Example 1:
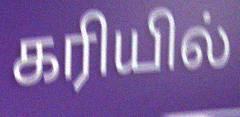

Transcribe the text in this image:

கரியில்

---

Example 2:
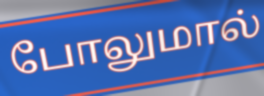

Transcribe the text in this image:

போலுமால்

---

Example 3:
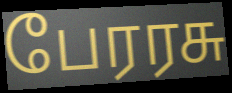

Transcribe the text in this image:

பேரரசு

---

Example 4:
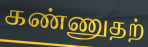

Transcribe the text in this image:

கண்ணுதற்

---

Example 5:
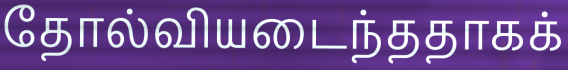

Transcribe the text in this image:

தோல்வியடைந்ததாகக்